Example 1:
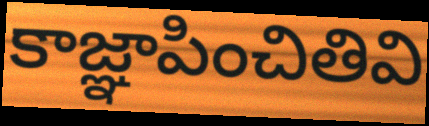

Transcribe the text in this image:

కాజ్ఞాపించితివి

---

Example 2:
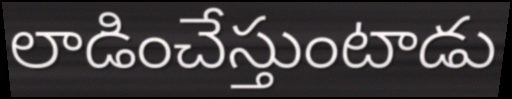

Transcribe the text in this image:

లాడించేస్తుంటాడు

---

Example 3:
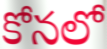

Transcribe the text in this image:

కోనలో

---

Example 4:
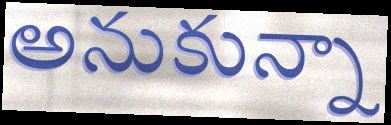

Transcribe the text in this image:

అనుకున్నా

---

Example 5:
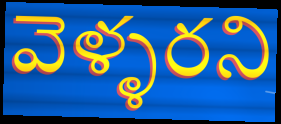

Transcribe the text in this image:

వెళ్ళరని